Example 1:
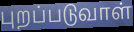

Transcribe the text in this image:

புறப்படுவாள்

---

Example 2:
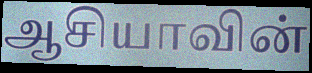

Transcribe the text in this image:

ஆசியாவின்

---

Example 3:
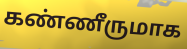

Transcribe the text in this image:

கண்ணீருமாக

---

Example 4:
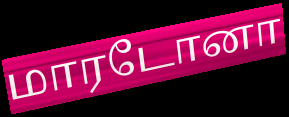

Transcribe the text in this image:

மாரடோனா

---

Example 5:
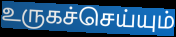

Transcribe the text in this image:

உருகச்செய்யும்